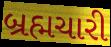
બ્રહ્મચારી